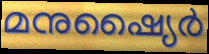
മനുഷ്യൈർ